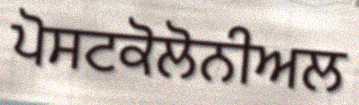
ਪੋਸਟਕੋਲੋਨੀਅਲ